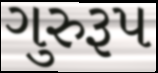
ગુરુરૂપ